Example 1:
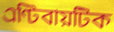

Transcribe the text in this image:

এণ্টিবায়টিক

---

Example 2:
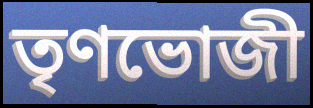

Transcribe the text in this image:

তৃণভোজী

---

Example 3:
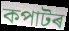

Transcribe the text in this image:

কপাটৰ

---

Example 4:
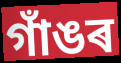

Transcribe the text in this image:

গাঁঙৰ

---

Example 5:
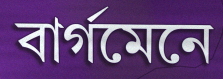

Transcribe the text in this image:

বাৰ্গমেনে